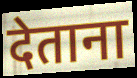
देताना